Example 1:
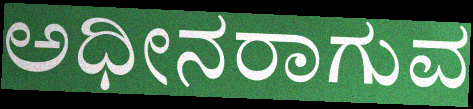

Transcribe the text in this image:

ಅಧೀನರಾಗುವ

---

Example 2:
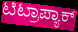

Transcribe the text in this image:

ಟೆಟ್ರಾಪ್ಯಾಕ್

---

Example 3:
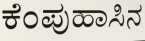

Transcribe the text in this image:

ಕೆಂಪುಹಾಸಿನ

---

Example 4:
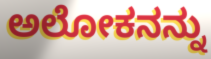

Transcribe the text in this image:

ಅಲೋಕನನ್ನು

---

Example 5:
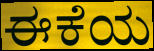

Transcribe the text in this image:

ಈಕೆಯ